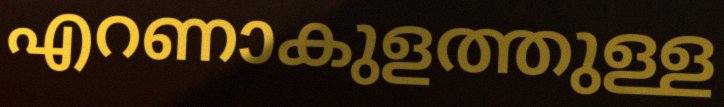
എറണാകുളത്തുള്ള